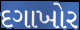
દગાખોર